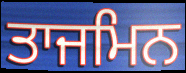
ਤਾਜਮਿਨ